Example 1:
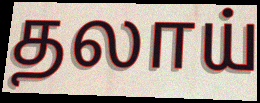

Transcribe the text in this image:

தலாய்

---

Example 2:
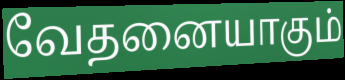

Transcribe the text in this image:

வேதனையாகும்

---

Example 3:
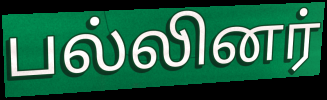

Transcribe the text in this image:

பல்லினர்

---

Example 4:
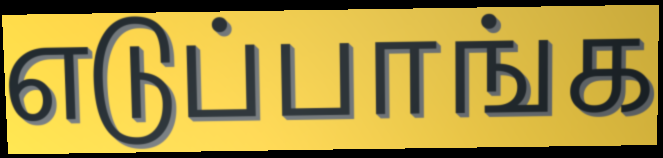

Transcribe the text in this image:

எடுப்பாங்க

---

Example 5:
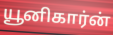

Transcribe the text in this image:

யூனிகார்ன்